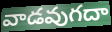
వాడవుగదా